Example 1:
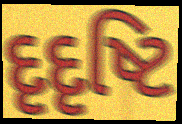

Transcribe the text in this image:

દૃદૃષ્ટિ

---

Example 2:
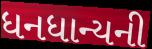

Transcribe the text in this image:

ધનધાન્યની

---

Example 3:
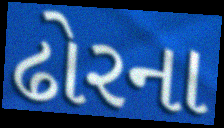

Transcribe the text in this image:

ઢોરના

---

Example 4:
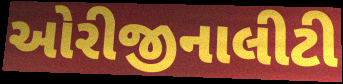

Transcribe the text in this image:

ઓરીજીનાલીટી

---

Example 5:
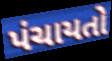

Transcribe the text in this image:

પંચાયતો